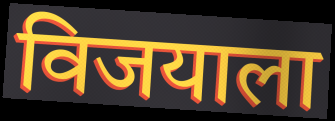
विजयाला